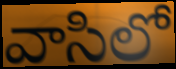
వాసిలో